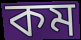
কম